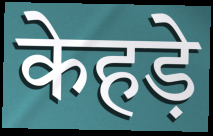
केहड़े